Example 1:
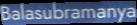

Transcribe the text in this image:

Balasubramanya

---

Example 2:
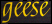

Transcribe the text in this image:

geese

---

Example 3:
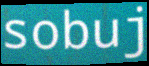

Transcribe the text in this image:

sobuj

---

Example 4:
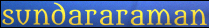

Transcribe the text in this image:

sundararaman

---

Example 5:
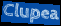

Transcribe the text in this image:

Clupea